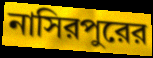
নাসিরপুরের